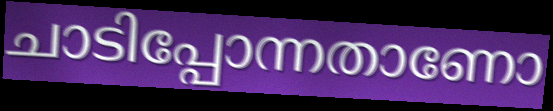
ചാടിപ്പോന്നതാണോ